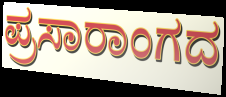
ಪ್ರಸಾರಾಂಗದ